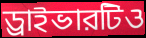
ড্রাইভারটিও